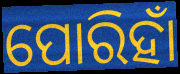
ପୋରିହାଁ